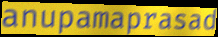
anupamaprasad